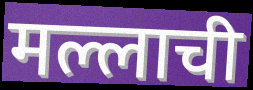
मल्लाची